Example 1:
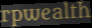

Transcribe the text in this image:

rpwealth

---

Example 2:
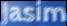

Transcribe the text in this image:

Jasim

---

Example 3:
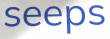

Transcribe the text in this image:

seeps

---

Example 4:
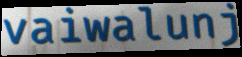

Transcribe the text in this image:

vaiwalunj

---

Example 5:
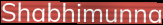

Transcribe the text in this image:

Shabhimunna